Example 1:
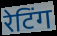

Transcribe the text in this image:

रेटिंग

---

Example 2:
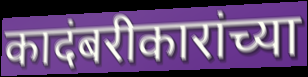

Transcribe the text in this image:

कादंबरीकारांच्या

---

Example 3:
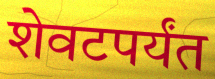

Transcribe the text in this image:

शेवटपर्यंत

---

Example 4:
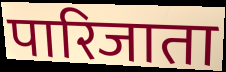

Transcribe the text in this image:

पारिजाता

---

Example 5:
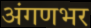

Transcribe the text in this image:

अंगणभर